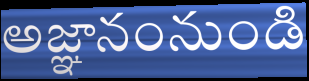
అజ్ఞానంనుండి